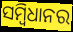
ସମ୍ବିଧାନର